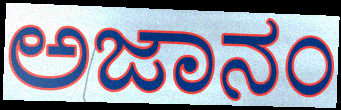
ಅಜಾನಂ